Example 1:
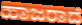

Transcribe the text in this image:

ಹಾಜರಾದೆ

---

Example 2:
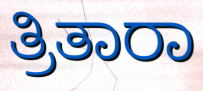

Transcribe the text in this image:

ತ್ರಿತಾರಾ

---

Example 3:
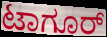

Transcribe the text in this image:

ಟಾಗೂರ್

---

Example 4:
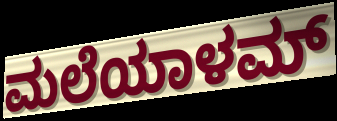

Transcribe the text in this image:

ಮಲೆಯಾಳಮ್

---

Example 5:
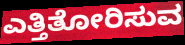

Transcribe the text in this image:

ಎತ್ತಿತೋರಿಸುವ